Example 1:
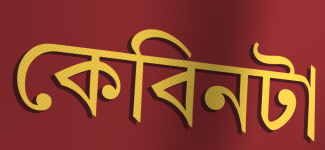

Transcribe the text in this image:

কেবিনটা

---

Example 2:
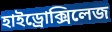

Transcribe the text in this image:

হাইড্রোক্সিলেজ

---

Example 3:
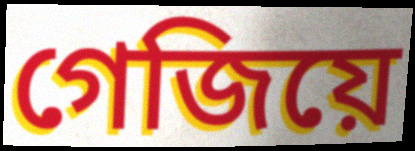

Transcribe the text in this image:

গেজিয়ে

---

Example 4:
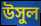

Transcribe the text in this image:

উসুল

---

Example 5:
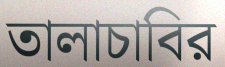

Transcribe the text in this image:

তালাচাবির